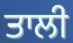
ਤਾਲੀ